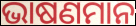
ଭାଷଣମାନ